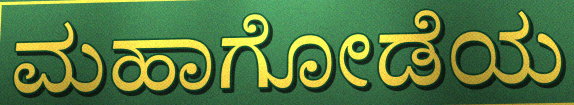
ಮಹಾಗೋಡೆಯ